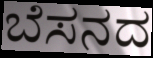
ಬೆಸನದ